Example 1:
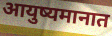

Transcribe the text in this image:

आयुष्यमानात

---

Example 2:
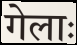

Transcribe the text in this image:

गेलाः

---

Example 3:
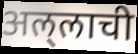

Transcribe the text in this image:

अल्लाची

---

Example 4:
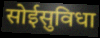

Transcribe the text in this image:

सोईसुविधा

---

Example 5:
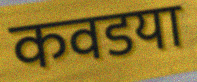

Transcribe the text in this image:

कवडया